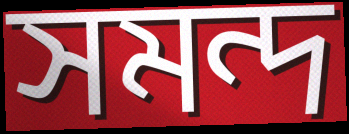
সমন্দ